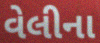
વેલીના